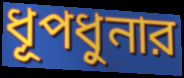
ধূপধুনার